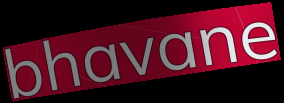
bhavane